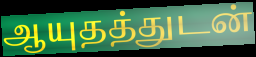
ஆயுதத்துடன்